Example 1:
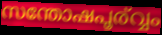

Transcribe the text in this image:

സന്തോഷപൂര്വ്വം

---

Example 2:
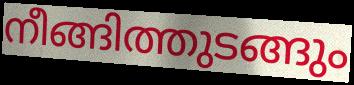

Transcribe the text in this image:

നീങ്ങിത്തുടങ്ങും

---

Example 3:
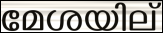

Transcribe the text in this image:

മേശയില്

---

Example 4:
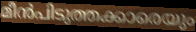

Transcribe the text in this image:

മീൻപിടുത്തക്കാരെയും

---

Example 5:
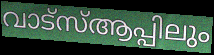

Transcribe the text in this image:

വാട്സ്ആപ്പിലും